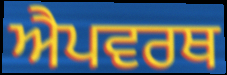
ਐਪਵਰਥ